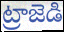
ట్రాజెడి